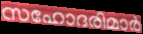
സഹോദരിമാർ